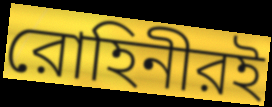
রোহিনীরই